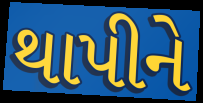
થાપીને